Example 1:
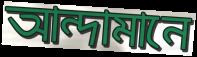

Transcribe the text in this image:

আন্দামানে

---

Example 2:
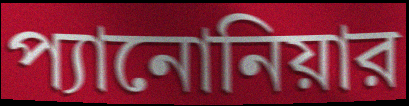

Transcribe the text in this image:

প্যানোনিয়ার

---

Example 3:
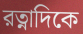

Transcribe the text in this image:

রত্নাদিকে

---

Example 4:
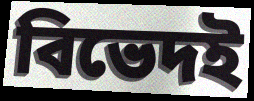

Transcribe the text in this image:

বিভেদই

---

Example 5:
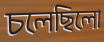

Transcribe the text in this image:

চলেছিলো